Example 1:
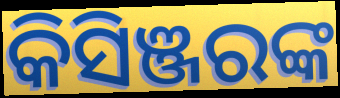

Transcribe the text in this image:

କିସିଞ୍ଜରଙ୍କ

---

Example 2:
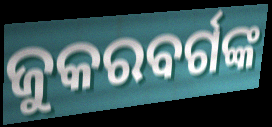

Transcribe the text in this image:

ଜୁକରବର୍ଗଙ୍କ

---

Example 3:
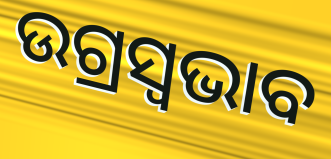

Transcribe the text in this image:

ଉଗ୍ରସ୍ୱଭାବ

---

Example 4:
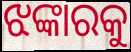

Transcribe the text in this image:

ଝଙ୍କାରକୁ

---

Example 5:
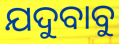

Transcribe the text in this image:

ଯଦୁବାବୁ